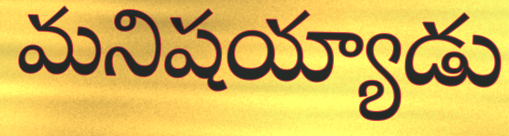
మనిషయ్యాడు